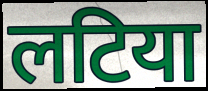
लटिया